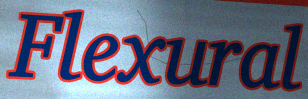
Flexural